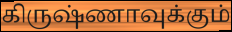
கிருஷ்ணாவுக்கும்